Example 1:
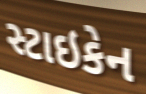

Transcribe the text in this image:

સ્ટાઇકેન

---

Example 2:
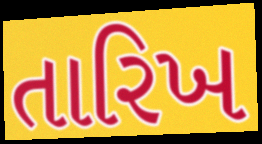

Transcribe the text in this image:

તારિખ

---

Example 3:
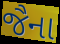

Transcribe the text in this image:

જૈના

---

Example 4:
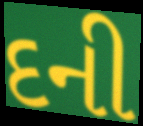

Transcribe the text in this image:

દની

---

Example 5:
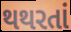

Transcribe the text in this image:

થથરતાં